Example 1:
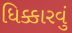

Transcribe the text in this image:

ધિક્કારવું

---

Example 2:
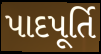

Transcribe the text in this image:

પાદપૂર્તિ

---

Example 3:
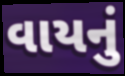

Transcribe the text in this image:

વાયનું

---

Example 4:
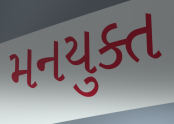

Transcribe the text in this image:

મનયુક્ત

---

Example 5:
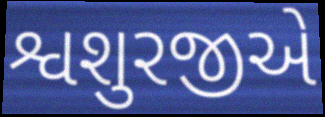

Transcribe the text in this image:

શ્વશુરજીએ